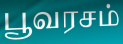
பூவரசம்